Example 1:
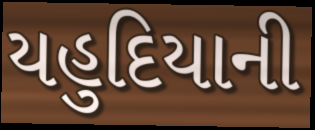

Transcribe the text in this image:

યહુદિયાની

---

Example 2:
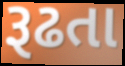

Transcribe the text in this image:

રૂઢતા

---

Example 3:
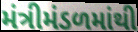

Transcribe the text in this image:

મંત્રીમંડળમાંથી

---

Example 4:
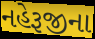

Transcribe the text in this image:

નહેરૂજીના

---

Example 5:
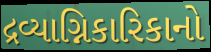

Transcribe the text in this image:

દ્રવ્યાગ્નિકારિકાનો